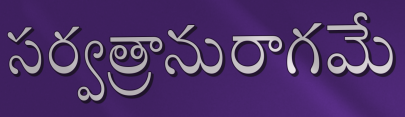
సర్వత్రానురాగమే